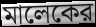
মালেকের